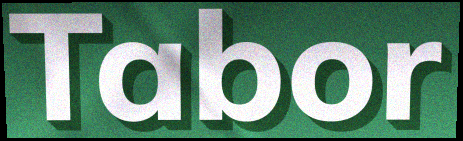
Tabor